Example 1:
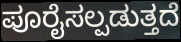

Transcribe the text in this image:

ಪೂರೈಸಲ್ಪಡುತ್ತದೆ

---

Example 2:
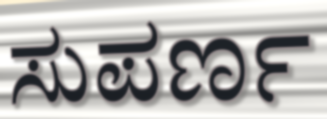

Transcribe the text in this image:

ಸುಪರ್ಣ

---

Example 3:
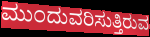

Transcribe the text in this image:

ಮುಂದುವರಿಸುತ್ತಿರುವ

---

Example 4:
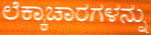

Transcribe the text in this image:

ಲೆಕ್ಕಾಚಾರಗಳನ್ನು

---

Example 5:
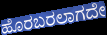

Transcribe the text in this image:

ಹೊರಬರಲಾಗದೇ